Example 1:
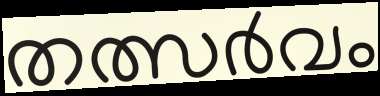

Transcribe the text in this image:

തത്സർവം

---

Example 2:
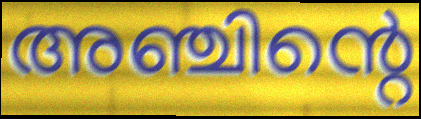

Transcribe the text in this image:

അഞ്ചിന്റെ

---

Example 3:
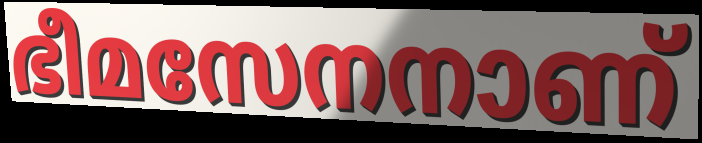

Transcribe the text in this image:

ഭീമസേനനാണ്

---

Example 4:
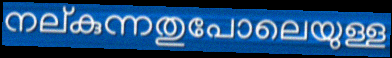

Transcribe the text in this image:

നല്കുന്നതുപോലെയുള്ള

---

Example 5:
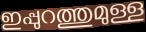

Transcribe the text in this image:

ഇപ്പുറത്തുമുള്ള